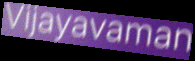
Vijayavaman